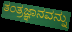
ತಂತ್ರಜ್ಞಾನವನ್ನು